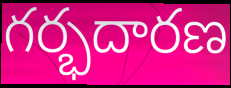
గర్భదారణ